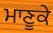
ਮਾਣੂਕੇ